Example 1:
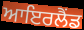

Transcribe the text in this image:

ਆਇਰਲੈੰਡ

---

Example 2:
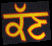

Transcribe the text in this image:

ਕੱਣ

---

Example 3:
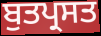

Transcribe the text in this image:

ਬੁਤਪ੍ਰਸਤ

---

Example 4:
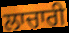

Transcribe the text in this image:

ਲਾਚਾਰੀ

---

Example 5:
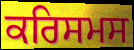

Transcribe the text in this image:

ਕਰਿਸਮਸ